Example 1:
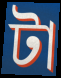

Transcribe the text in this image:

টা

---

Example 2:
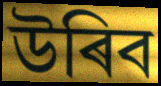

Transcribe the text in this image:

উৰিব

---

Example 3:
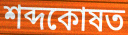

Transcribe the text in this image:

শব্দকোষত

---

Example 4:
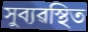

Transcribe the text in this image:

সুব্যৱস্থিত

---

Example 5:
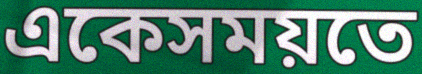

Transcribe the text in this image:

একেসময়তে